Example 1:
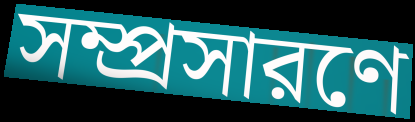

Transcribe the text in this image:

সম্প্রসারণে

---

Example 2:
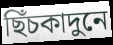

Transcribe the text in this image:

ছিঁচকাদুনে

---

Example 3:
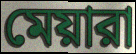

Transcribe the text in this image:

মেয়ারা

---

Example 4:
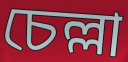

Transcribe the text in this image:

চেল্লা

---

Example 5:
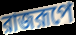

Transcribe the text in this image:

রাজরূপে